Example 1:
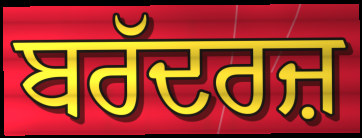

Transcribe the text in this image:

ਬਰੱਦਰਜ਼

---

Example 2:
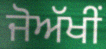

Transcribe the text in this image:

ਜੋਅੱਖੀਂ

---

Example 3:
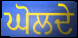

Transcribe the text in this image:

ਘੋਲਦੇ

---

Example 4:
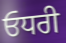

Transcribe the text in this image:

ਓਧਰੀ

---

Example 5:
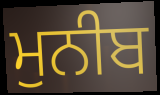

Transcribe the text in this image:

ਮੁਨੀਬ